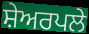
ਸ਼ੇਅਰਪਲੇ